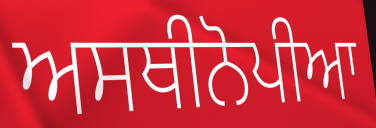
ਅਸਥੀਨੋਪੀਆ